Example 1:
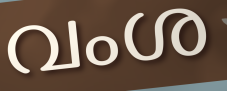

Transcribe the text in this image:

വംശ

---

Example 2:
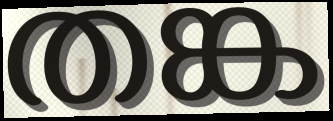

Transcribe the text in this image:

തങ്ക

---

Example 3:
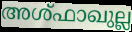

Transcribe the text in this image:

അശ്ഫാഖുല്ല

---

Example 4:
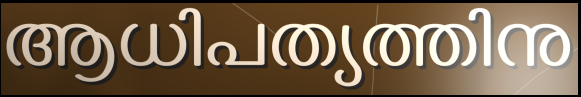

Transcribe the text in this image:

ആധിപത്യത്തിനു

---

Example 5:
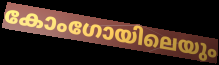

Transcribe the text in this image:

കോംഗോയിലെയും